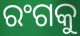
ରଂଗକୁ